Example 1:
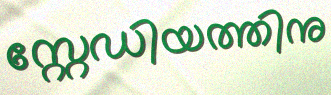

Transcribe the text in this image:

സ്റ്റേഡിയത്തിനു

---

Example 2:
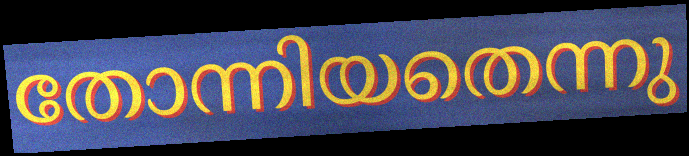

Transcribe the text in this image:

തോന്നിയതെന്നു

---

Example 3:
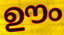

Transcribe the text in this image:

ഊം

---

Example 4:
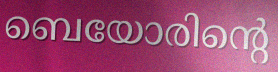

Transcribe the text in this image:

ബെയോരിന്റെ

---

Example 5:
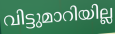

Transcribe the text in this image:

വിട്ടുമാറിയില്ല